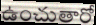
ఉంచుతారో